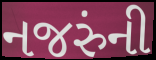
નજરુંની